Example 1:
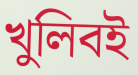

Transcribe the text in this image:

খুলিবই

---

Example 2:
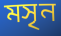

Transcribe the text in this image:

মসৃন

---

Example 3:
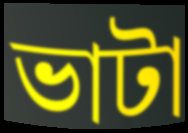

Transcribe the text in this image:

ভাটা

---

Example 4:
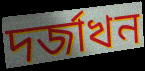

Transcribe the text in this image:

দৰ্জাখন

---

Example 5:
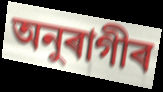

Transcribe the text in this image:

অনুৰাগীৰ